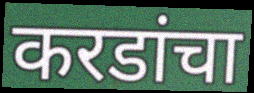
करडांचा